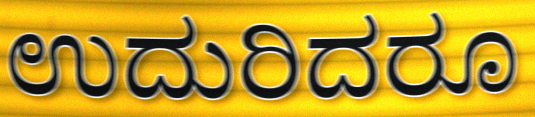
ಉದುರಿದರೂ